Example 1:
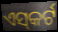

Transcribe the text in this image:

ଏସ୍‌କର୍ଟ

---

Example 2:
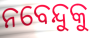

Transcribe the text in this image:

ନବେନ୍ଦୁକୁ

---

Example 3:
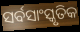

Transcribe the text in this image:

ସର୍ବସାଂସ୍କୃତିକ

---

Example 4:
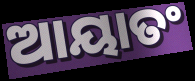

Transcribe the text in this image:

ଆୟାତଂ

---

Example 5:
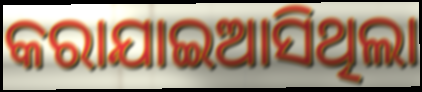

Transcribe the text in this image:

କରାଯାଇଆସିଥିଲା